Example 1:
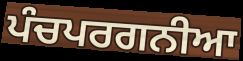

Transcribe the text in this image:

ਪੰਚਪਰਗਨੀਆ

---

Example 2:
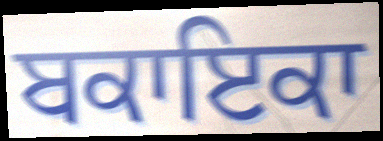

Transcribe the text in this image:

ਬਕਾਇਕਾ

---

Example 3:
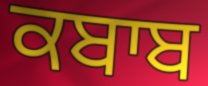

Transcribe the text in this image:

ਕਬਾਬ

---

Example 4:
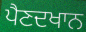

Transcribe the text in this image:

ਪੈਣਦਖਾਨ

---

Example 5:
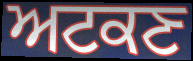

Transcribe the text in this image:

ਅਟਕਣ